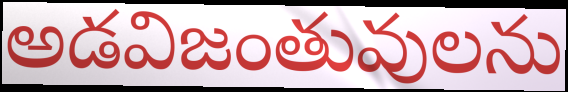
అడవిజంతువులను